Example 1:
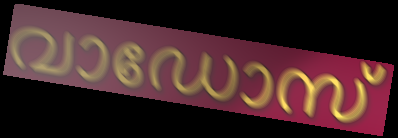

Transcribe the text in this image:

വാഡോസ്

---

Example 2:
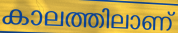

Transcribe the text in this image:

കാലത്തിലാണ്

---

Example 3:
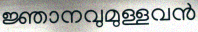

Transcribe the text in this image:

ജ്ഞാനവുമുള്ളവൻ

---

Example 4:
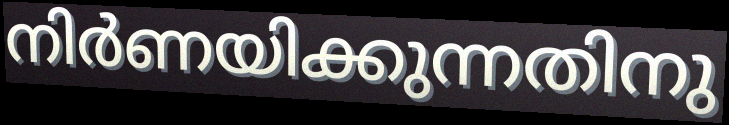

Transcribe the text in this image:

നിർണയിക്കുന്നതിനു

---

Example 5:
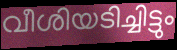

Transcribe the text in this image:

വീശിയടിച്ചിട്ടും